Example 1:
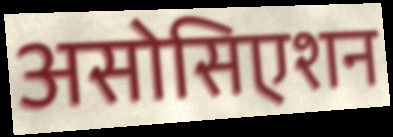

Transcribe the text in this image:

असोसिएशन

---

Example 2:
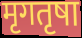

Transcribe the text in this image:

मृगतृषा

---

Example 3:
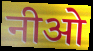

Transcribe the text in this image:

नीओ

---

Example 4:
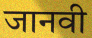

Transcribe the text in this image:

जानवी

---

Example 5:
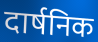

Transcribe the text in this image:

दार्षनिक